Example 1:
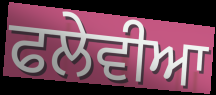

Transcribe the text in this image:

ਫਲੇਵੀਆ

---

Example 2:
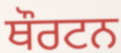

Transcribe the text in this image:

ਥੌਰਟਨ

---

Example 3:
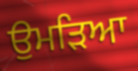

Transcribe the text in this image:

ਉਮੜਿਆ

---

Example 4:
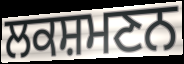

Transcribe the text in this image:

ਲਕਸ਼ਮਣਨ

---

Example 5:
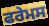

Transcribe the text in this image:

ਫਰੇਮਸ